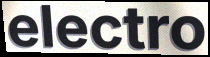
electro